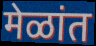
मेळांत